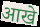
आखे